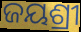
ଜୟଶ୍ରୀ